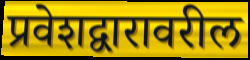
प्रवेशद्वारावरील